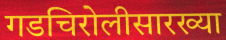
गडचिरोलीसारख्या